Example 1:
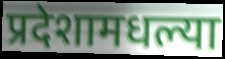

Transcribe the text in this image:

प्रदेशामधल्या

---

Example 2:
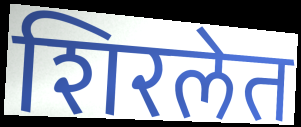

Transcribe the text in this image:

शिरलेत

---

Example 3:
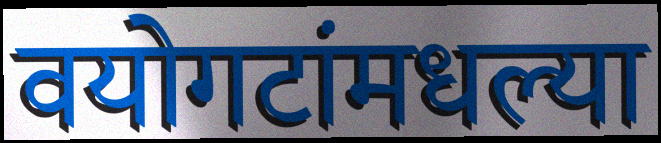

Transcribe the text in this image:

वयोगटांमधल्या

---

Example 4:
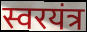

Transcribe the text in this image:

स्वरयंत्र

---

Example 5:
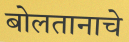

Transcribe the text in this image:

बोलतानाचे